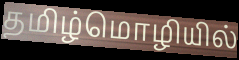
தமிழ்மொழியில்